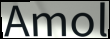
Amol